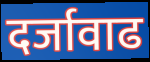
दर्जावाढ